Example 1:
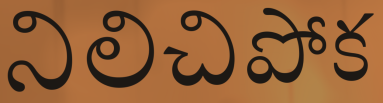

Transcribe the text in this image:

నిలిచిపోక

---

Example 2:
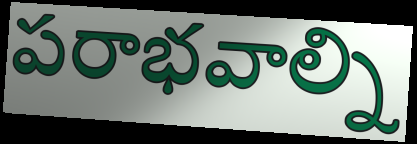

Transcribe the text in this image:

పరాభవాల్ని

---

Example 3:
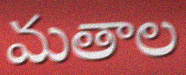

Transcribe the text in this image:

మతాల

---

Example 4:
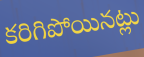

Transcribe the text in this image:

కరిగిపోయినట్లు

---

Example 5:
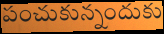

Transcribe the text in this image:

పంచుకున్నందుకు